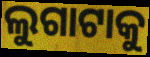
ଲୁଗାଟାକୁ